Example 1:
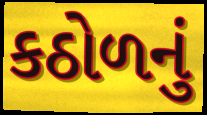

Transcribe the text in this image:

કઠોળનું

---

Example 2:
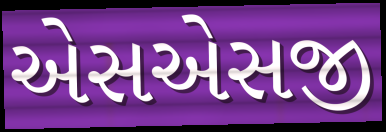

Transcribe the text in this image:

એસએસજી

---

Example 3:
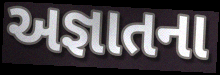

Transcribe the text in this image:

અજ્ઞાતના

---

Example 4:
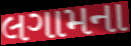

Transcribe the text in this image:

લગામના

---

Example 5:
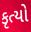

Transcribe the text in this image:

કૃત્યો